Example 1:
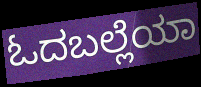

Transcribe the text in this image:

ಓದಬಲ್ಲೆಯಾ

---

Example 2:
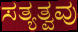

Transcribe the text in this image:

ಸತ್ಯತ್ವವು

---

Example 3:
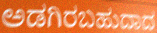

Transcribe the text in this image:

ಅಡಗಿರಬಹುದಾದ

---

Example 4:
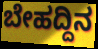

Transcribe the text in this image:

ಬೇಹದ್ದಿನ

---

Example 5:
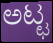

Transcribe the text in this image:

ಅಟ್ಟ